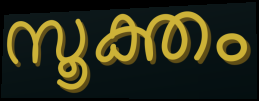
സൂക്തം